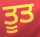
ਤੂਤ